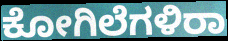
ಕೋಗಿಲೆಗಳಿರಾ